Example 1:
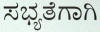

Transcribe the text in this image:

ಸಭ್ಯತೆಗಾಗಿ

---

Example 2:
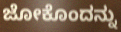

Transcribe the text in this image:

ಜೋಕೊಂದನ್ನು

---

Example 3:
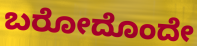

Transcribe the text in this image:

ಬರೋದೊಂದೇ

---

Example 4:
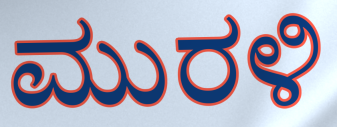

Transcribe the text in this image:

ಮುರಳಿ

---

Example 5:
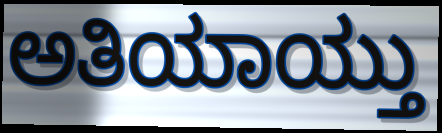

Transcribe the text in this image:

ಅತಿಯಾಯ್ತು